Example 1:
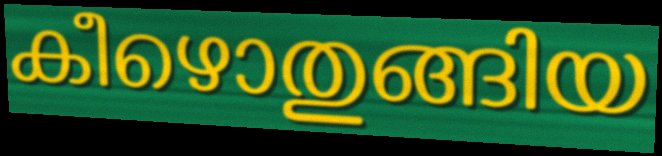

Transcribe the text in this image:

കീഴൊതുങ്ങിയ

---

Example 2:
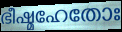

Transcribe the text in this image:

ഭീഷ്മഹേതോഃ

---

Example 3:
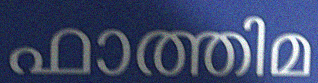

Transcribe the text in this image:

ഫാത്തിമ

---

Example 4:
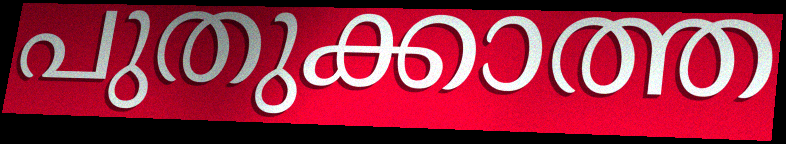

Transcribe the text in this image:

പുതുക്കാത്ത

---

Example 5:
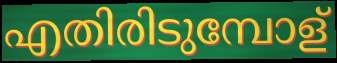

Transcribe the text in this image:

എതിരിടുമ്പോള്